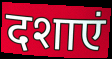
दशाएं